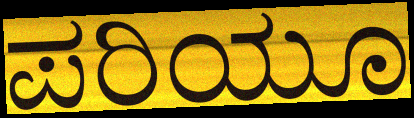
ಪರಿಯೂ